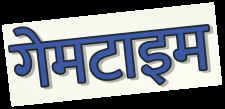
गेमटाइम